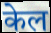
केल